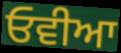
ਓਵੀਆ